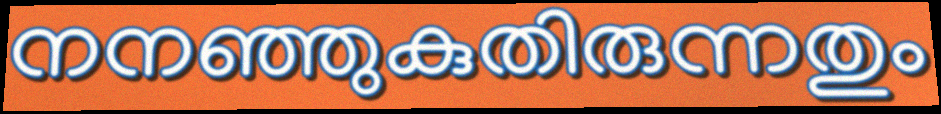
നനഞ്ഞുകുതിരുന്നതും